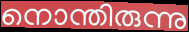
നൊന്തിരുന്നു